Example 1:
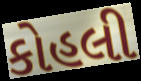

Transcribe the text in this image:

કોહલી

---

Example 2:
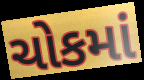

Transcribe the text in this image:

ચોકમાં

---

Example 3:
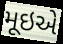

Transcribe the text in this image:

મૂઇએ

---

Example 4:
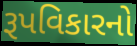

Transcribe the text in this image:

રૂપવિકારનો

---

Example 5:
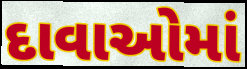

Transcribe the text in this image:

દાવાઓમાં